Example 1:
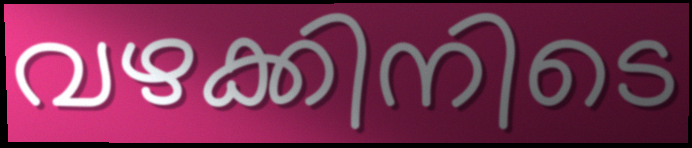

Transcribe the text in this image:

വഴക്കിനിടെ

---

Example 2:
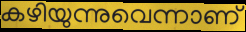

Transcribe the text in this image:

കഴിയുന്നുവെന്നാണ്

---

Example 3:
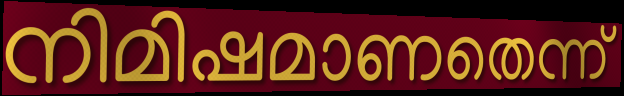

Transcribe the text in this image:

നിമിഷമാണതെന്ന്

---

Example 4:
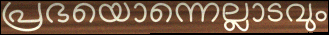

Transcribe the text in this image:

പ്രഭയൊന്നെല്ലാടവും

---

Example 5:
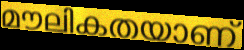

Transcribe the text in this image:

മൗലികതയാണ്